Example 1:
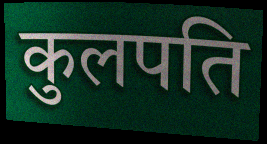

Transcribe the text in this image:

कुलपति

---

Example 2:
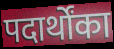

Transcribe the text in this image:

पदार्थोंका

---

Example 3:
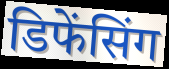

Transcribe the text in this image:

डिफेंसिंग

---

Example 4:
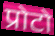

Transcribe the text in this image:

प्रोटो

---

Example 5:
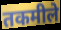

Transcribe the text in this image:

तकमीले